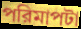
পরিমাপটা